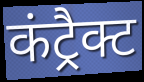
कंट्रैक्ट